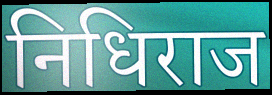
निधिराज